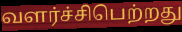
வளர்ச்சிபெற்றது